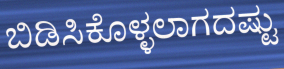
ಬಿಡಿಸಿಕೊಳ್ಳಲಾಗದಷ್ಟು